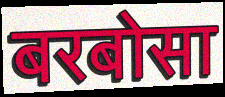
बरबोसा